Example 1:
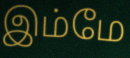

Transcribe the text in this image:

இம்மே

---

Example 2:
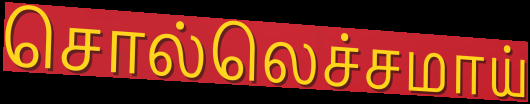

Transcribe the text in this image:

சொல்லெச்சமாய்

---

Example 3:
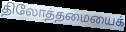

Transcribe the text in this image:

திலோத்தமையைக்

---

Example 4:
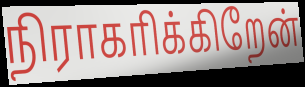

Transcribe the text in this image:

நிராகரிக்கிறேன்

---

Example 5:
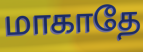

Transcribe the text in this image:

மாகாதே